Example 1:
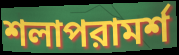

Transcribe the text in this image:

শলাপরামর্শ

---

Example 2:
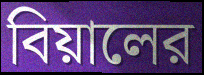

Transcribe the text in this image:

বিয়ালের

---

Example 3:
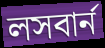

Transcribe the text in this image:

লসবার্ন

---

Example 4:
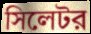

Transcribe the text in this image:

সিলেটর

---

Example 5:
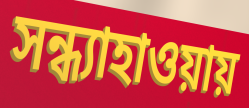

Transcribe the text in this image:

সন্ধ্যাহাওয়ায়